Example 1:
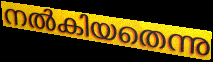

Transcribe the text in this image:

നൽകിയതെന്നു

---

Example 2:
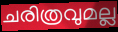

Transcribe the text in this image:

ചരിത്രവുമല്ല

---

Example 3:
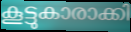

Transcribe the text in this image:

കൂട്ടുകാരാക്കി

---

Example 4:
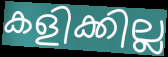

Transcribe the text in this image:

കളിക്കില്ല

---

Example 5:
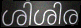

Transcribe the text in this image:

ശിശിര